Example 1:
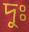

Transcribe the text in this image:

দুঃ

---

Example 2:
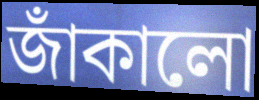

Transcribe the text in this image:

জাঁকালো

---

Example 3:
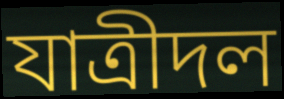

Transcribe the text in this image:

যাত্রীদল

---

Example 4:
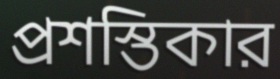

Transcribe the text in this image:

প্রশস্তিকার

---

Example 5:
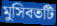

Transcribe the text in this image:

মুসিবতটি